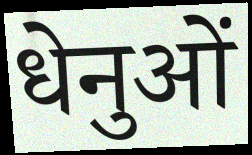
धेनुओं